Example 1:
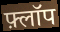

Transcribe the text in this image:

फ़्लॉप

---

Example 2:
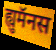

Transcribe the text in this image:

ह्युमॅनस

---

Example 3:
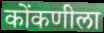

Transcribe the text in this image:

कोंकणीला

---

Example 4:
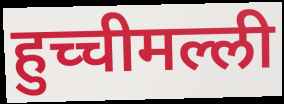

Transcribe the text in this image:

हुच्चीमल्ली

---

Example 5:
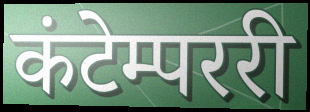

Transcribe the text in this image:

कंटेम्पररी